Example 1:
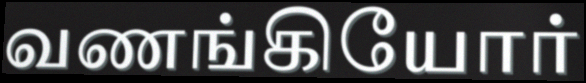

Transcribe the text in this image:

வணங்கியோர்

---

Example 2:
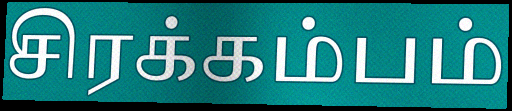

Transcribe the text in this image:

சிரக்கம்பம்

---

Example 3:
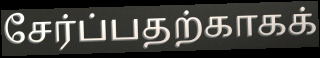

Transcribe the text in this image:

சேர்ப்பதற்காகக்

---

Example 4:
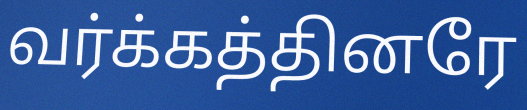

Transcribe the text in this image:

வர்க்கத்தினரே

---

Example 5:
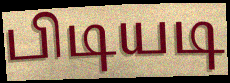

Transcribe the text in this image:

பிடியடி